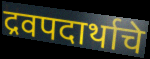
द्रवपदार्थाचे